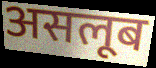
असलूब